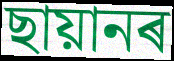
ছায়ানৰ